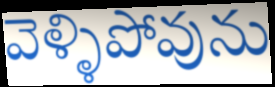
వెళ్ళిపోవును